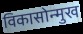
विकासोन्मुख